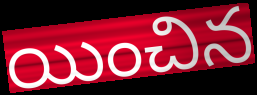
యించిన